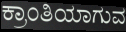
ಕ್ರಾಂತಿಯಾಗುವ